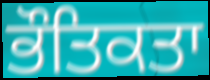
ਭੌਤਿਕਤਾ